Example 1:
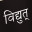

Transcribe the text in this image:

विद्युत्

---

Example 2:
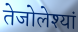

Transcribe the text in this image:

तेजोलेश्यां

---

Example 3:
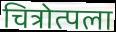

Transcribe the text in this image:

चित्रोत्पला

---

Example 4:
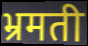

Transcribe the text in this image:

भ्रमती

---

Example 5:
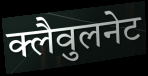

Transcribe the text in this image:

क्लैवुलनेट